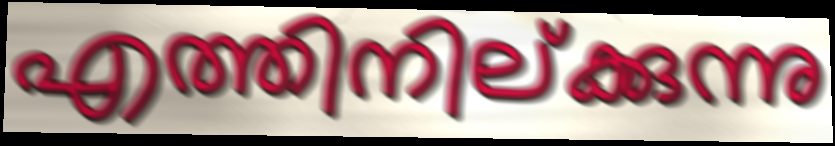
എത്തിനില്ക്കുന്നു